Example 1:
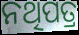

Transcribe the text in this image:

ନଥିପତ୍ର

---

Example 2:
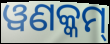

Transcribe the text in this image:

ୱଣକ୍କମ୍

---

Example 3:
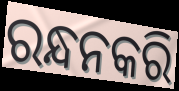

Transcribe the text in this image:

ରନ୍ଧନକରି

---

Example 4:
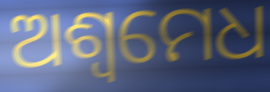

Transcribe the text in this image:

ଅଶ୍ୱମେଧ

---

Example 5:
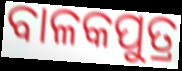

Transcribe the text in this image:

ବାଳକପୁତ୍ର